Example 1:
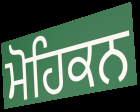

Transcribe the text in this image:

ਮੋਹਿਕਨ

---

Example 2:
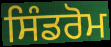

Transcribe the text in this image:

ਸਿੰਡਰੋਮ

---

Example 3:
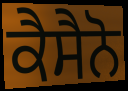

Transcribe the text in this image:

ਕੈਸੈਨੋ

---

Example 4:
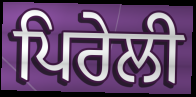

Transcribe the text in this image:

ਪਿਰੇਲੀ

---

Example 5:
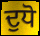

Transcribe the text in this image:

ਦੁਧੋ